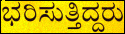
ಭರಿಸುತ್ತಿದ್ದರು